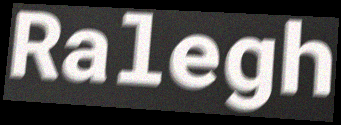
Ralegh